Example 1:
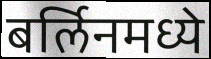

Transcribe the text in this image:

बर्लिनमध्ये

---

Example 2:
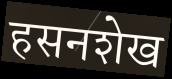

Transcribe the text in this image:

हसनशेख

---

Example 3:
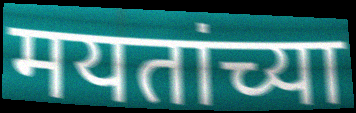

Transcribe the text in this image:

मयतांच्या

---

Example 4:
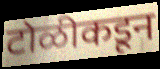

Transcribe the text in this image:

टोळीकडून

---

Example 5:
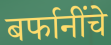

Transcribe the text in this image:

बर्फानींचे